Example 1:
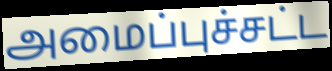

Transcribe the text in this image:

அமைப்புச்சட்ட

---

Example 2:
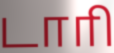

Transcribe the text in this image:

டாரி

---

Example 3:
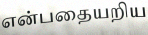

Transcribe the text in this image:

என்பதையறிய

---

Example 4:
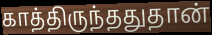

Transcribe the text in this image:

காத்திருந்ததுதான்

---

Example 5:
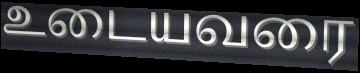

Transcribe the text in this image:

உடையவரை